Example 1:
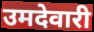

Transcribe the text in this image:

उमदेवारी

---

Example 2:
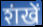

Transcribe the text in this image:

शंखें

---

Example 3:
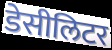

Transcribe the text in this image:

डेसीलिटर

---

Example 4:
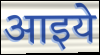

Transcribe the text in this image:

आइये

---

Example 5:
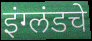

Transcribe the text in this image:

इंग्लंडचे